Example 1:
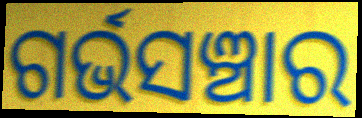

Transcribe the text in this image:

ଗର୍ଭସଞ୍ଚାର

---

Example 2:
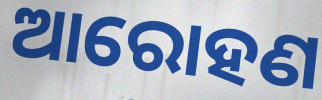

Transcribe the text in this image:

ଆରୋହଣ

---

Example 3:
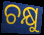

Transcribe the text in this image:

ଚକ୍ଷୁ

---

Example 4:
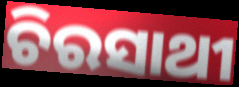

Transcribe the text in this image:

ଚିରସାଥୀ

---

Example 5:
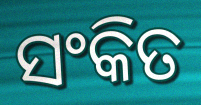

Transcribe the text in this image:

ସଂକିତ